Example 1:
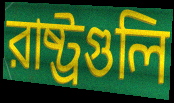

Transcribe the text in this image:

রাষ্ট্রগুলি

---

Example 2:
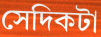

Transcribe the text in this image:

সেদিকটা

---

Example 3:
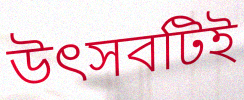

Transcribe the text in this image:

উৎসবটিই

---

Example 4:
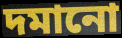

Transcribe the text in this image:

দমানো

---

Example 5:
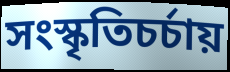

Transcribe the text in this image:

সংস্কৃতিচর্চায়